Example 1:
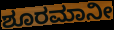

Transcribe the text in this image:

ಶೂರಮಾನೀ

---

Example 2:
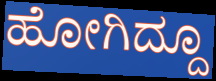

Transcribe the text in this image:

ಹೋಗಿದ್ದೂ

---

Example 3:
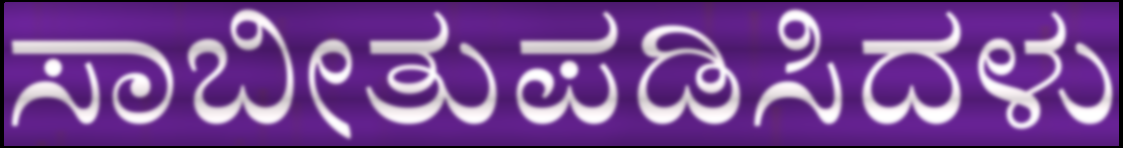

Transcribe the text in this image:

ಸಾಬೀತುಪಡಿಸಿದಳು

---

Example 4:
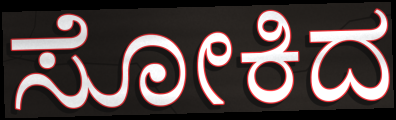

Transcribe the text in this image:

ಸೋಕಿದ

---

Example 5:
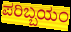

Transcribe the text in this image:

ಪರಿಬ್ಬಯಂ